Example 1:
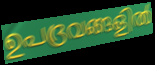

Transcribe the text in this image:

ഉപദ്രവങ്ങളിൽ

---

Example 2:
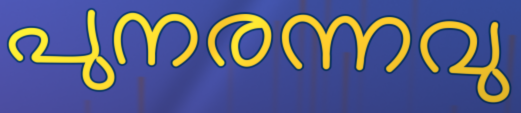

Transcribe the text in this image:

പുനരന്നവു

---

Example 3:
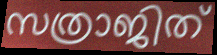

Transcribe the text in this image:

സത്രാജിത്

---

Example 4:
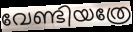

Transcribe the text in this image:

വേണ്ടിയത്രേ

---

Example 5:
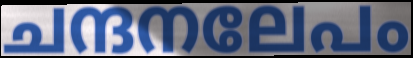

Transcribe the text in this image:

ചന്ദനലേപം